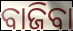
ବାଜିବା